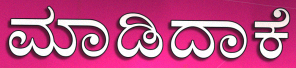
ಮಾಡಿದಾಕೆ